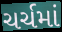
ચર્ચમાં